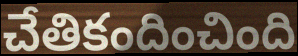
చేతికందించింది